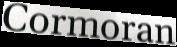
Cormoran